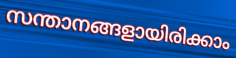
സന്താനങ്ങളായിരിക്കാം